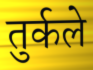
तुर्कले